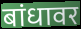
बांधावर